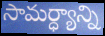
సామర్ధ్యాన్ని